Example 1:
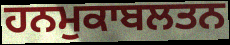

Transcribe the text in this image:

ਹਨਮੁਕਾਬਲਤਨ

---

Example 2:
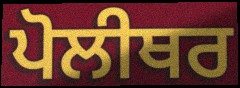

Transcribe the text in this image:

ਪੋਲੀਥਰ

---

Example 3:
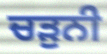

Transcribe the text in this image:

ਚੜੁਨੀ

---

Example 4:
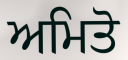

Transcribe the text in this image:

ਅਮਿਤੋ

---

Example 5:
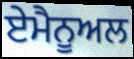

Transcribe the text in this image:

ਏਮੈਨੂਅਲ